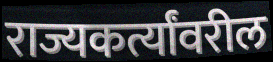
राज्यकर्त्यांवरील